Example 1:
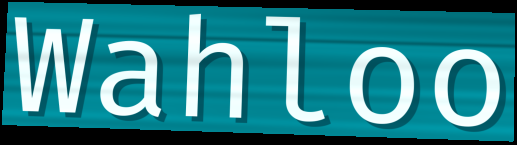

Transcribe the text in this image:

Wahloo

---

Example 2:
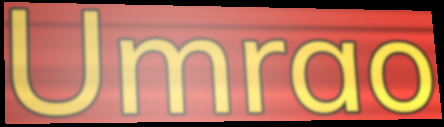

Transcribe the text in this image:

Umrao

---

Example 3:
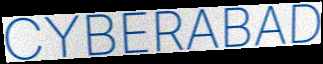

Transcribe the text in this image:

CYBERABAD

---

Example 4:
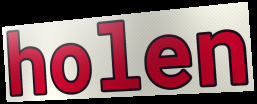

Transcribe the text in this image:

holen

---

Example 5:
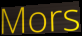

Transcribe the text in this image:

Mors